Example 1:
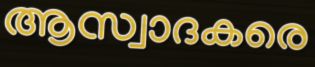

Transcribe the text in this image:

ആസ്വാദകരെ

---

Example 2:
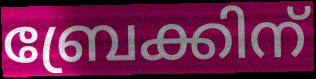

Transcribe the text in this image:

ബ്രേക്കിന്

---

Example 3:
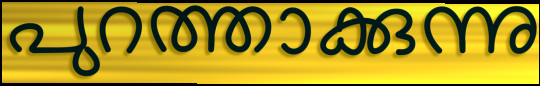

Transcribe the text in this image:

പുറത്താക്കുന്നു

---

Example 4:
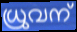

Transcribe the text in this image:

ധ്രുവന്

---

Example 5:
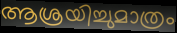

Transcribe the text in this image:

ആശ്രയിച്ചുമാത്രം